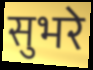
सुभरे